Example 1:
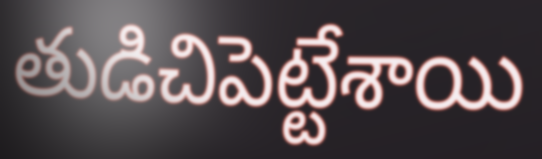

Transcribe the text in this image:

తుడిచిపెట్టేశాయి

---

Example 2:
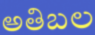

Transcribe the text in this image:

అతిబల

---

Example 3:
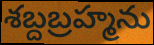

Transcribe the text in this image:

శబ్దబ్రహ్మను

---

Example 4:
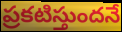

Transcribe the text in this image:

ప్రకటిస్తుందనే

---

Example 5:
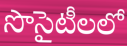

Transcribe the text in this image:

సొసైటీలలో